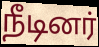
நீடினர்